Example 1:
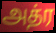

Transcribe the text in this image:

அத்ர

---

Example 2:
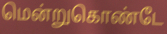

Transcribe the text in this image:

மென்றுகொண்டே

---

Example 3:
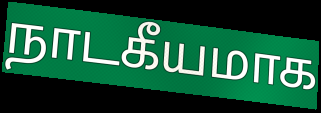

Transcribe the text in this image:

நாடகீயமாக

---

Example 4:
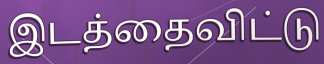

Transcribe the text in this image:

இடத்தைவிட்டு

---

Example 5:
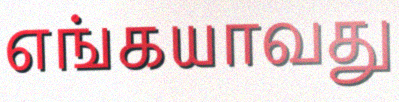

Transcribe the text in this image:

எங்கயாவது